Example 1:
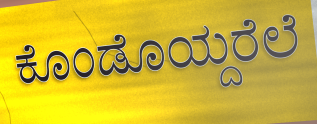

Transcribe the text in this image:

ಕೊಂಡೊಯ್ದರೆಲೆ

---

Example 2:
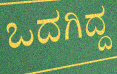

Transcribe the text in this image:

ಒದಗಿದ್ದ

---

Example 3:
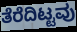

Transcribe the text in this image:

ತೆರೆದಿಟ್ಟವು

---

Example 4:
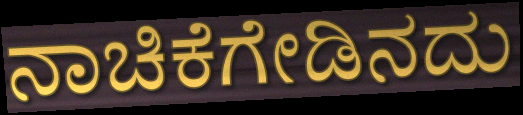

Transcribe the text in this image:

ನಾಚಿಕೆಗೇಡಿನದು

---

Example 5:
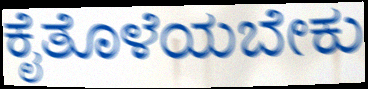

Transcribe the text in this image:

ಕೈತೊಳೆಯಬೇಕು